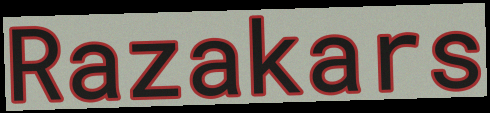
Razakars